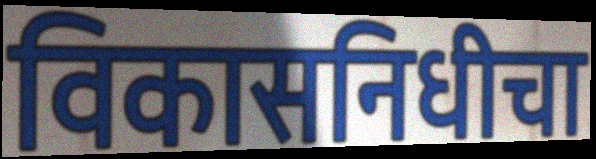
विकासनिधीचा